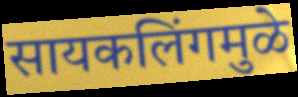
सायकलिंगमुळे